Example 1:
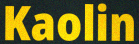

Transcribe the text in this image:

Kaolin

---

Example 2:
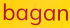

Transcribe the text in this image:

bagan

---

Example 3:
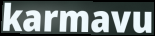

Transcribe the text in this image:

karmavu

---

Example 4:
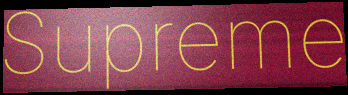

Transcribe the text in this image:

Supreme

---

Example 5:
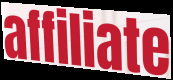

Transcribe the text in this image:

affiliate